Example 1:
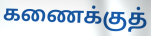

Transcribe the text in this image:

கணைக்குத்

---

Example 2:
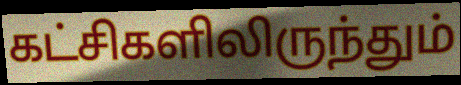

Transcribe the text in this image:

கட்சிகளிலிருந்தும்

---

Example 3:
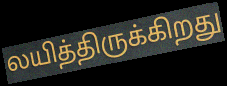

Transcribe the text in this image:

லயித்திருக்கிறது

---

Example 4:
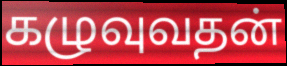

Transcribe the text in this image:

கழுவுவதன்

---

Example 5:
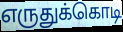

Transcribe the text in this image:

எருதுக்கொடி